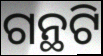
ଗନ୍ଥଟି